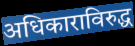
अधिकाराविरुद्ध